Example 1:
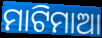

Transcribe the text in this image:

ମାଟିମାଆ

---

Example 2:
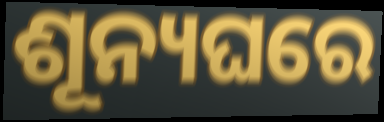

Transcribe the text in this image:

ଶୂନ୍ୟଘରେ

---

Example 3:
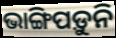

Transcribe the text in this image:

ଭାଙ୍ଗିପଡ଼ୁନି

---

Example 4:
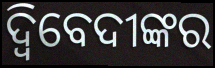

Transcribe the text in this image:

ଦ୍ଵିବେଦୀଙ୍କର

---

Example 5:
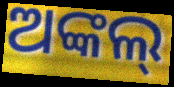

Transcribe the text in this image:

ଅଙ୍କଲ୍